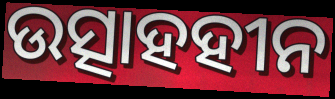
ଉତ୍ସାହହୀନ